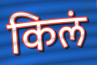
किलं